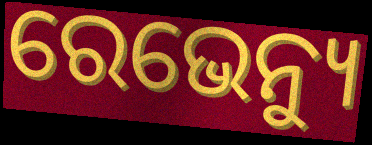
ରେଭେନ୍ୟୁ